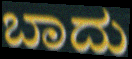
ಬಾದು